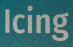
Icing